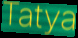
Tatya